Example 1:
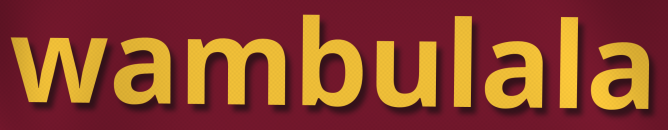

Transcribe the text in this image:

wambulala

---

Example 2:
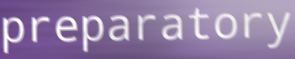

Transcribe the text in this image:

preparatory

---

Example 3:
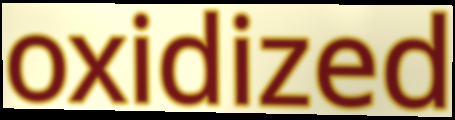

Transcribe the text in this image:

oxidized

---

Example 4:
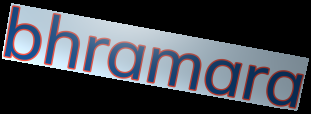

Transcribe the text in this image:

bhramara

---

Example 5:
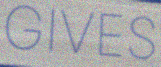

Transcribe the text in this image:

GIVES